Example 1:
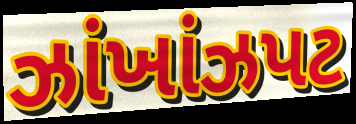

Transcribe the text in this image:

ઝાંખાંઝપટ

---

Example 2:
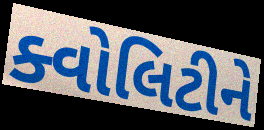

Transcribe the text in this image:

ક્વોલિટીને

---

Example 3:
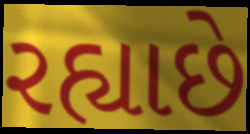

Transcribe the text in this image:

રહ્યાછે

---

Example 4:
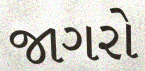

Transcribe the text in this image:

જાગરો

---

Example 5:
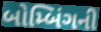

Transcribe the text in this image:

બોમ્બિંગની